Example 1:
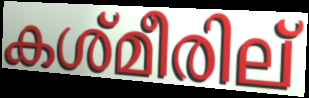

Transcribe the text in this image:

കശ്മീരില്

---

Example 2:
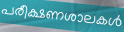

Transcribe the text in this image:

പരീക്ഷണശാലകൾ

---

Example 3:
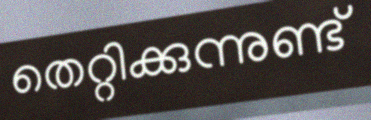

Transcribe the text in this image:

തെറ്റിക്കുന്നുണ്ട്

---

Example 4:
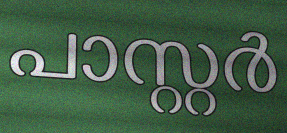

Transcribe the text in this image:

പാസ്റ്റർ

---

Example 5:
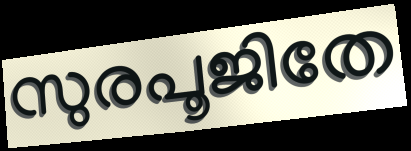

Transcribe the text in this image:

സുരപൂജിതേ